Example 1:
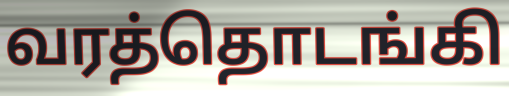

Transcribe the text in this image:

வரத்தொடங்கி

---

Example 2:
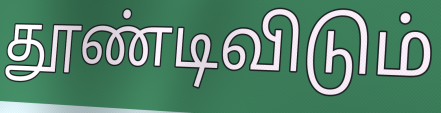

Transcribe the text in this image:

தூண்டிவிடும்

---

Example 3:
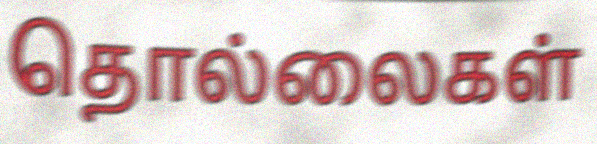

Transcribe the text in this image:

தொல்லைகள்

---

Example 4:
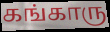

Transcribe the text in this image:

கங்காரு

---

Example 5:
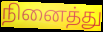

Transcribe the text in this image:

நினைத்து